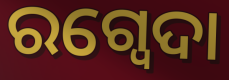
ରଗ୍ବେଦା